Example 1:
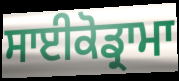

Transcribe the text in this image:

ਸਾਈਕੋਡ੍ਰਾਮਾ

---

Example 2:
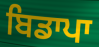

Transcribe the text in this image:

ਬਿਡਾਪਾ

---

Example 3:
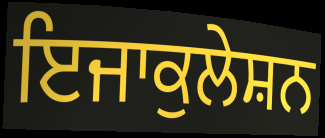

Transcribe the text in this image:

ਇਜਾਕੁਲੇਸ਼ਨ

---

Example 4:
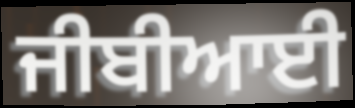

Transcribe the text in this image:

ਜੀਬੀਆਈ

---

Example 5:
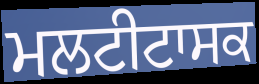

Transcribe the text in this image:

ਮਲਟੀਟਾਸਕ